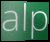
alp